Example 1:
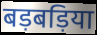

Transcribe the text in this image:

बड़बड़िया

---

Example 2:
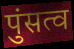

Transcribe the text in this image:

पुंसत्व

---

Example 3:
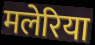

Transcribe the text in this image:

मलेरिया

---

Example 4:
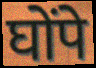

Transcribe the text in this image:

घोंपे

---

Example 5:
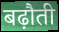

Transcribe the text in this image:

बढ़ौती